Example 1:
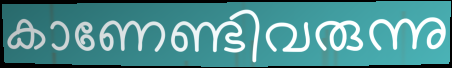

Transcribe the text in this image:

കാണേണ്ടിവരുന്നു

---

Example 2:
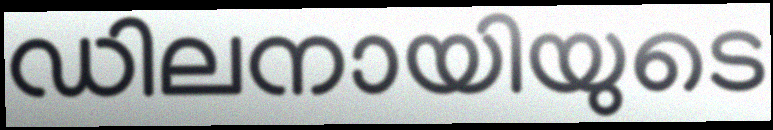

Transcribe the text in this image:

ഡിലനായിയുടെ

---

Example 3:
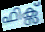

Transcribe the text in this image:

ഫിക്സ്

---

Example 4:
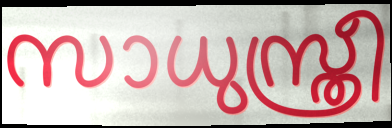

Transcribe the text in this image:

സാധുസ്ത്രീ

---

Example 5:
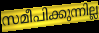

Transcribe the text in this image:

സമീപിക്കുന്നില്ല